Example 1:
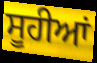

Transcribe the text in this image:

ਸੂਹੀਆਂ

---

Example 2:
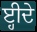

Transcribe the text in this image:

ੲ੍ਹੀਦੇ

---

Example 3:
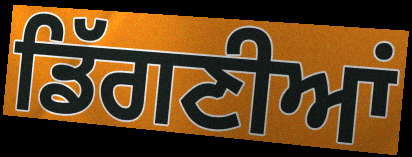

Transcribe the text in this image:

ਡਿੱਗਣੀਆਂ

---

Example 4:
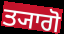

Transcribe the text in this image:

ਤ੍ਯਾਗੋ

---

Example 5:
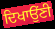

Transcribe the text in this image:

ਦਿਖਾਉਂਣੀ